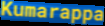
Kumarappa